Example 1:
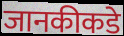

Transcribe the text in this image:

जानकीकडे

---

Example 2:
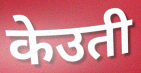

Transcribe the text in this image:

केउती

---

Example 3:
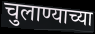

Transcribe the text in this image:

चुलाण्याच्या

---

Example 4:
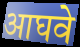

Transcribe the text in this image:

आघवे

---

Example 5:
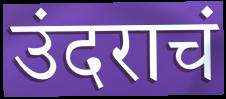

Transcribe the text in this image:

उंदराचं